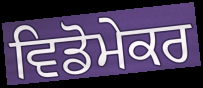
ਵਿਡੋਮੇਕਰ